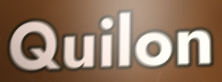
Quilon